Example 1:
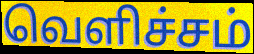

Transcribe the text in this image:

வெளிச்சம்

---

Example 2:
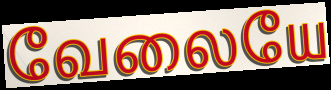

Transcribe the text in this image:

வேலையே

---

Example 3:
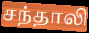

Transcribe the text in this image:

சந்தாலி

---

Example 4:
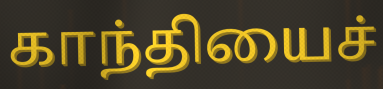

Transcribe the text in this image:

காந்தியைச்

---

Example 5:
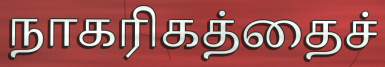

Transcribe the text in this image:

நாகரிகத்தைச்